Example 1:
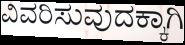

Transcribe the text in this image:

ವಿವರಿಸುವುದಕ್ಕಾಗಿ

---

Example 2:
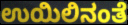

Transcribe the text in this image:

ಉಯಿಲಿನಂತೆ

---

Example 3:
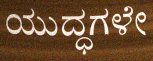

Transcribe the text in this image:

ಯುದ್ಧಗಳೇ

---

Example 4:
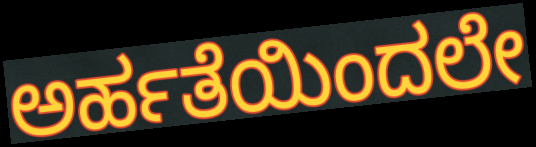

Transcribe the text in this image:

ಅರ್ಹತೆಯಿಂದಲೇ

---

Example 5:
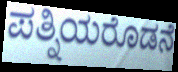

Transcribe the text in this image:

ಪತ್ನಿಯರೊಡನೆ